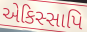
એકિસ્સાપિ